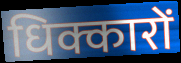
धिक्कारों